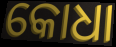
କୋଧା